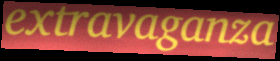
extravaganza